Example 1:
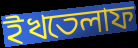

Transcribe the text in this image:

ইখতেলাফ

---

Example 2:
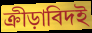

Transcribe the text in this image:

ক্রীড়াবিদই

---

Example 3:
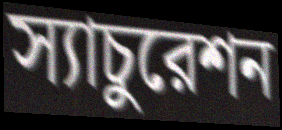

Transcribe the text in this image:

স্যাচুরেশন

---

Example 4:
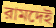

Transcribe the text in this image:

রামদেই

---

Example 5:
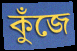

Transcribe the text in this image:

কুঁজে